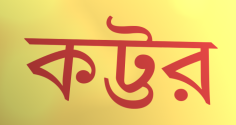
কট্টর